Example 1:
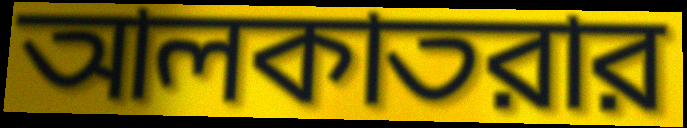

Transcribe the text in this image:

আলকাতরার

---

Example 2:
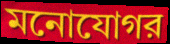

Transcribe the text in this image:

মনোযোগর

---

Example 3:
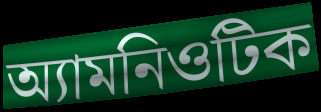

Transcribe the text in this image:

অ্যামনিওটিক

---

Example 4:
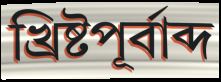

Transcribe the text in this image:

খ্রিষ্টপূর্বাব্দ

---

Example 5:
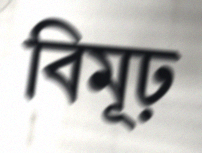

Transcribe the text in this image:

বিমূঢ়